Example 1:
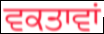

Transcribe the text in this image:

ਵਕਤਾਵਾਂ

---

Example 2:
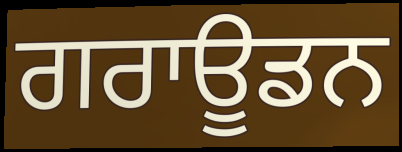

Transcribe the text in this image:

ਗਰਾਊਡਨ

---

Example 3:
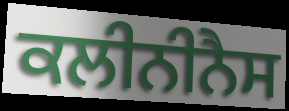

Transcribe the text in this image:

ਕਲੀਨੀਨੈਸ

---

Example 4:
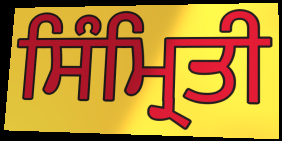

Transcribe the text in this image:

ਸਿੰਮ੍ਰਿਤੀ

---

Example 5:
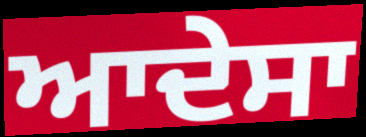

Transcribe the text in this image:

ਆਦੇਸਾ